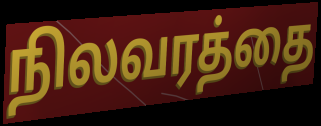
நிலவரத்தை